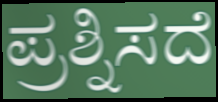
ಪ್ರಶ್ನಿಸದೆ